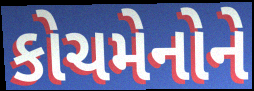
કોચમેનોને